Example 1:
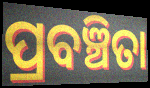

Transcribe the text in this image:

ପ୍ରବଞ୍ଚିତା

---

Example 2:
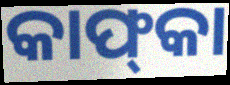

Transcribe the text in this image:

କାଫ୍‌କା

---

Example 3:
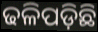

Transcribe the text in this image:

ଢଳିପଡ଼ିଛି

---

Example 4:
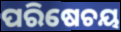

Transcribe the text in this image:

ପରିଷେଚୟ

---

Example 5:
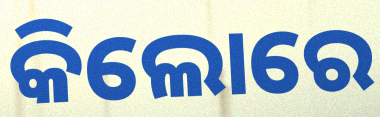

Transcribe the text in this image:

କିଲୋରେ